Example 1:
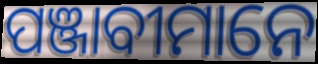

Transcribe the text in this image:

ପଞ୍ଜାବୀମାନେ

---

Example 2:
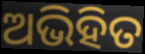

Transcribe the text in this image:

ଅଭିହିତ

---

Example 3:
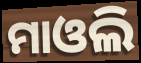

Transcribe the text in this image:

ମାଓଲି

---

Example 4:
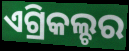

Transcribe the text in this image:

ଏଗ୍ରିକଲ୍ଚର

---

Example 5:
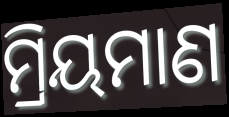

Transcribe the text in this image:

ମ୍ରିୟମାଣ